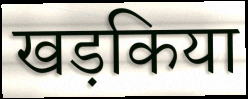
खड़किया